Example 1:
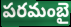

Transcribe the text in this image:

పరమంబై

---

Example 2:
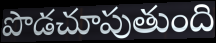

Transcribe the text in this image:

పొడచూపుతుంది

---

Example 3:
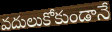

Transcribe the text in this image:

వదులుకోకుండానే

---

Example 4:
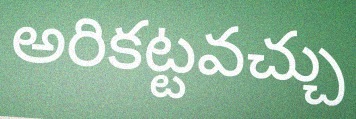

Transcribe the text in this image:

అరికట్టవచ్చు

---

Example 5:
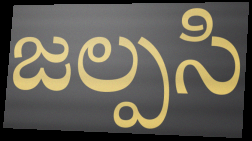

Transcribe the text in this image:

జల్పసి